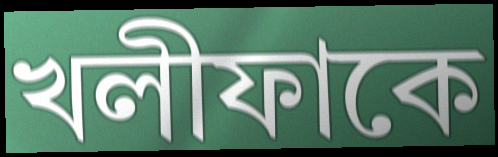
খলীফাকে